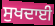
ਸੁਖਦਾਈ